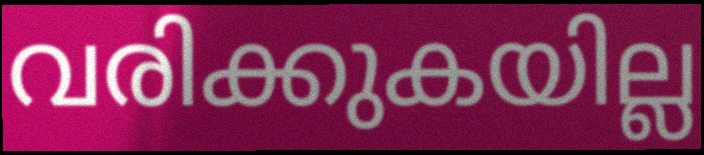
വരിക്കുകയില്ല